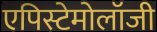
एपिस्टेमोलॉजी